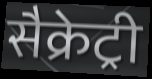
सैक्रेट्री